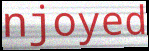
njoyed